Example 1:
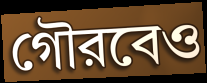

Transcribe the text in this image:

গৌরবেও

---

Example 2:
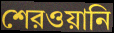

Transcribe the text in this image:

শেরওয়ানি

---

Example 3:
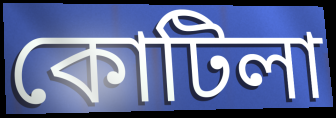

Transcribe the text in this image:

কোটিলা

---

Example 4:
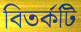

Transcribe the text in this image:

বিতর্কটি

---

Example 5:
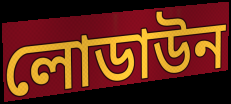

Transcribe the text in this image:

লোডাউন